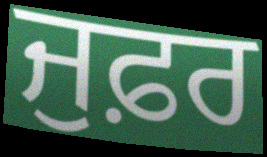
ਜੁਫ਼ਰ